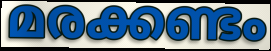
മരക്കണ്ടം